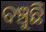
ବଞ୍ଚୁଛି